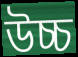
উচ্চ